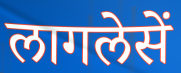
लागलेसें